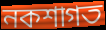
নকশাগত